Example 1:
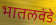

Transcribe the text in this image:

भातलवंडे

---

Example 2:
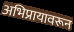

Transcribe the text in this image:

अभिप्रायावरून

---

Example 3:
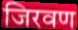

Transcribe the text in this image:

जिरवण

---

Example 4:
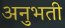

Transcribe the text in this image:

अनुभती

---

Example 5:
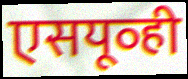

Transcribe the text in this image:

एसयूव्ही